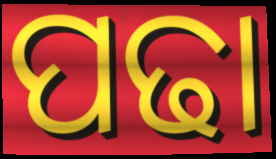
ପଢା